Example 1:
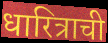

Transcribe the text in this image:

धारित्राची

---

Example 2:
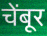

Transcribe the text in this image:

चेंबूर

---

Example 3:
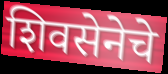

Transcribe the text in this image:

शिवसेनेचे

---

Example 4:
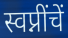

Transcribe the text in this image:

स्वप्नींचें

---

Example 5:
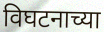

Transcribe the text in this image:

विघटनाच्या